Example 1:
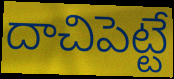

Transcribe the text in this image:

దాచిపెట్టే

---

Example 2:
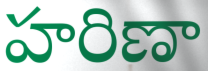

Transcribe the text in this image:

హరిణా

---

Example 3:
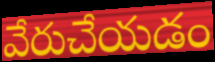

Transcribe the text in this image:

వేరుచేయడం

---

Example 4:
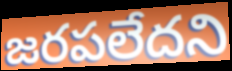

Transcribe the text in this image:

జరపలేదని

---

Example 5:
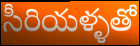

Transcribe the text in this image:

సీరియళ్ళతో